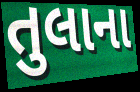
તુલાના